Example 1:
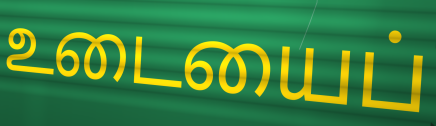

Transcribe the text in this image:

உடையைப்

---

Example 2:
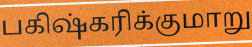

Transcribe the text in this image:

பகிஷ்கரிக்குமாறு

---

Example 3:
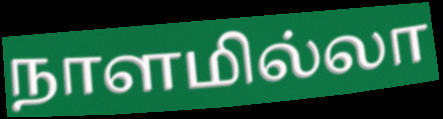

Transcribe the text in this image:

நாளமில்லா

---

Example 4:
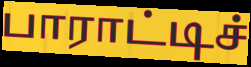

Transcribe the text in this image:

பாராட்டிச்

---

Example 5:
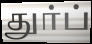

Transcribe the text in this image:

துர்ப்